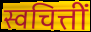
स्वचित्तीं